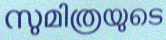
സുമിത്രയുടെ